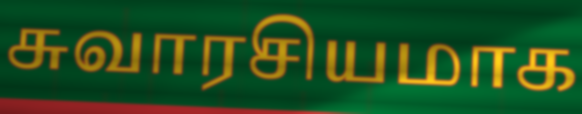
சுவாரசியமாக